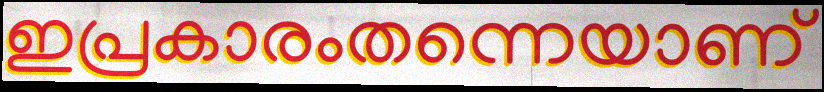
ഇപ്രകാരംതന്നെയാണ്